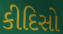
કીદિસો